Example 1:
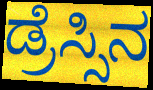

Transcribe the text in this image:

ಡ್ರೆಸ್ಸಿನ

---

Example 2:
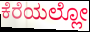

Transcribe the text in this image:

ಕೆರೆಯಲ್ಲೋ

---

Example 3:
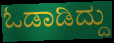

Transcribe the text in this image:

ಓಡಾಡಿದ್ದು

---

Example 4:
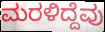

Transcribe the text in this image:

ಮರಳಿದ್ದೆವು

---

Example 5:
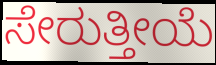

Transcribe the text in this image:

ಸೇರುತ್ತೀಯೆ